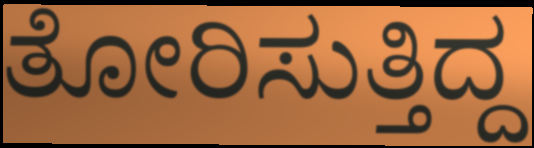
ತೋರಿಸುತ್ತಿದ್ದ